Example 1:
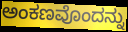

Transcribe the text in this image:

ಅಂಕಣವೊಂದನ್ನು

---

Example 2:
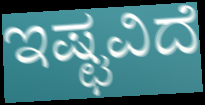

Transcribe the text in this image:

ಇಷ್ಟವಿದೆ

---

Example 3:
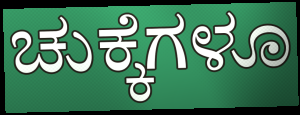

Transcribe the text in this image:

ಚುಕ್ಕೆಗಳೂ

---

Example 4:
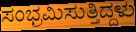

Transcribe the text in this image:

ಸಂಭ್ರಮಿಸುತ್ತಿದ್ದಳು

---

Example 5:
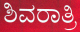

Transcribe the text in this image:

ಶಿವರಾತ್ರಿ